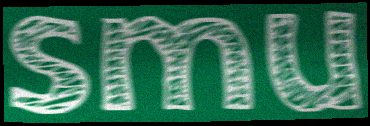
smu